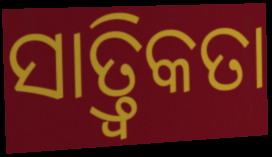
ସାତ୍ତ୍ଵିକତା